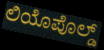
ಲಿಯೊಪೊಲ್ಡ್